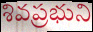
శివప్రభుని